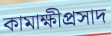
কামাক্ষীপ্রসাদ